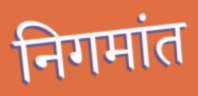
निगमांत